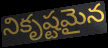
నికృష్టమైన